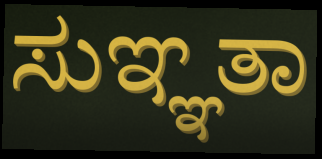
ಸುಞ್ಞತಾ